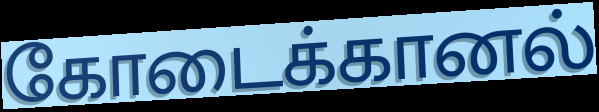
கோடைக்கானல்